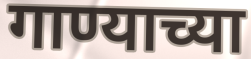
गाण्याच्या